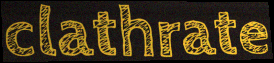
clathrate